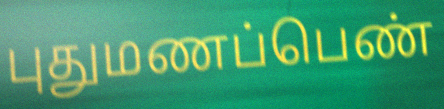
புதுமணப்பெண்